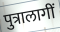
पुत्रालागीं